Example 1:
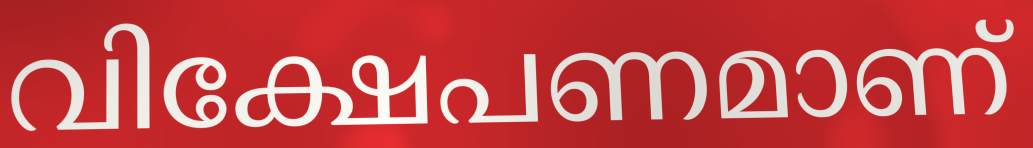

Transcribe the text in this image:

വിക്ഷേപണമാണ്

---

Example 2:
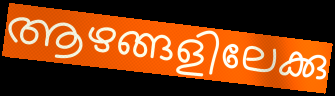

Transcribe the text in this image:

ആഴങ്ങളിലേക്കു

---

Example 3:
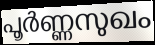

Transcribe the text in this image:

പൂർണ്ണസുഖം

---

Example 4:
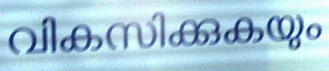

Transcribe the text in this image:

വികസിക്കുകയും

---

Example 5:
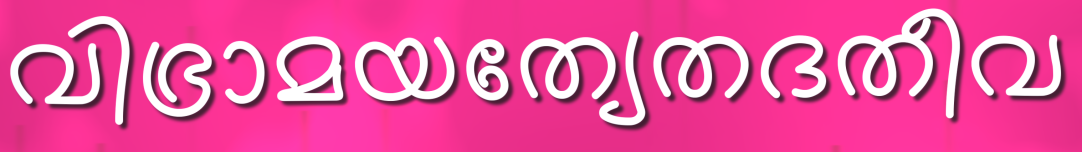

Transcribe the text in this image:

വിഭ്രാമയത്യേതദതീവ